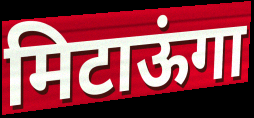
मिटाऊंगा